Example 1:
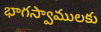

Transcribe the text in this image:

భాగస్వాములకు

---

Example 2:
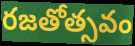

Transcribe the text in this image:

రజతోత్సవం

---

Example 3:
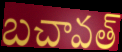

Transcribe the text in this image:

బచావత్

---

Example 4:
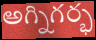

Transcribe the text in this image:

అగ్నిగర్భ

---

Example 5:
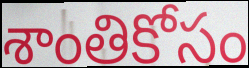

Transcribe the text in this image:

శాంతికోసం